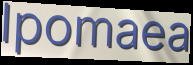
Ipomaea